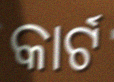
କାର୍ଟ